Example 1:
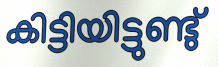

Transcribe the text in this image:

കിട്ടിയിട്ടുണ്ടു്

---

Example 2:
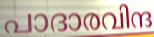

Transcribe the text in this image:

പാദാരവിന്ദ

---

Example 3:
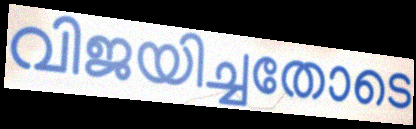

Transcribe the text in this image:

വിജയിച്ചതോടെ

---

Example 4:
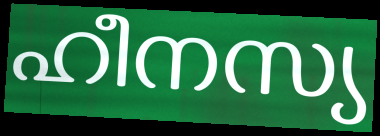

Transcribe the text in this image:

ഹീനസ്യ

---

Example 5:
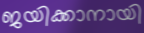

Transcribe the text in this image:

ജയിക്കാനായി